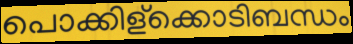
പൊക്കിള്ക്കൊടിബന്ധം